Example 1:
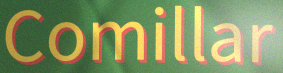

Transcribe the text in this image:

Comillar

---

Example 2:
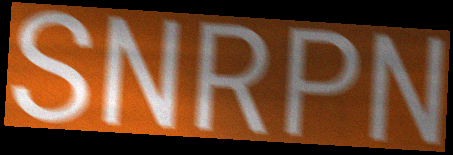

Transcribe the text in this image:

SNRPN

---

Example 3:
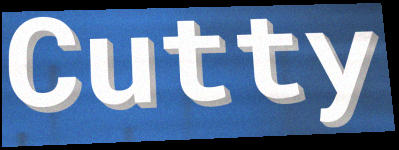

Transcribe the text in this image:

Cutty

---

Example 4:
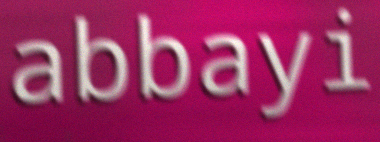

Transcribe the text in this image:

abbayi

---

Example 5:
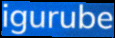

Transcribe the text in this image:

igurube